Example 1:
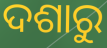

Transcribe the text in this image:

ଦଶାରୁ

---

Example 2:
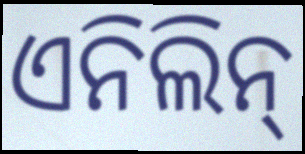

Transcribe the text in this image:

ଏନିଲିନ୍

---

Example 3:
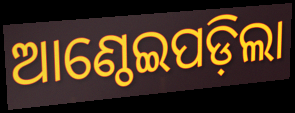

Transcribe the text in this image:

ଆଣ୍ଠେଇପଡ଼ିଲା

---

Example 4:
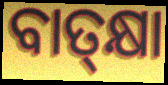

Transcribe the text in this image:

ବାତ୍କ୍ଷା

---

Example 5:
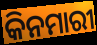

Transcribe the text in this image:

କିନମାରୀ